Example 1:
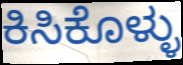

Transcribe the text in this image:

ಕಿಸಿಕೊಳ್ಳು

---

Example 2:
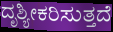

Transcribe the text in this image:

ದೃಶ್ಯೀಕರಿಸುತ್ತದೆ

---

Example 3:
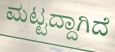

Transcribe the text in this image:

ಮಟ್ಟದ್ದಾಗಿದೆ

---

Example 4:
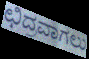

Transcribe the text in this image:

ಛಿದ್ರವಾಗಲು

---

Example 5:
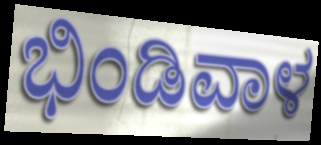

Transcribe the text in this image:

ಭಿಂಡಿವಾಳ